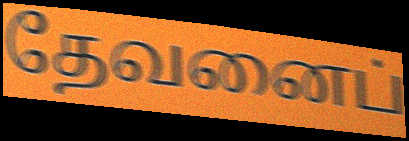
தேவனைப்